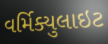
વર્મિક્યુલાઇટ